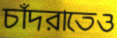
চাঁদরাতেও